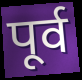
पूर्व